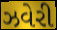
ઝવેરી